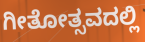
ಗೀತೋತ್ಸವದಲ್ಲಿ